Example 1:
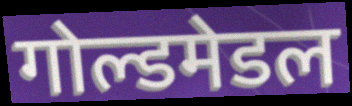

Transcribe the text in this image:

गोल्डमेडल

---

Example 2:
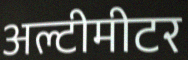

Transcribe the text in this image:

अल्टीमीटर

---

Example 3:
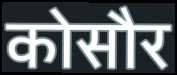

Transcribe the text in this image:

कोसौर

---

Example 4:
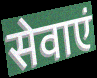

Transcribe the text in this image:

सेवाएं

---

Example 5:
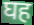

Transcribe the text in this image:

घह